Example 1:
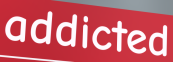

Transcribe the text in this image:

addicted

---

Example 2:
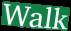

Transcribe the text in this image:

Walk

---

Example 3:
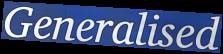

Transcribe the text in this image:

Generalised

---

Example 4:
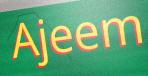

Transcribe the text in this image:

Ajeem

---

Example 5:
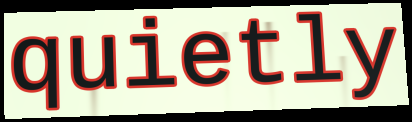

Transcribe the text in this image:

quietly